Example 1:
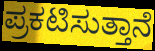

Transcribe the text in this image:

ಪ್ರಕಟಿಸುತ್ತಾನೆ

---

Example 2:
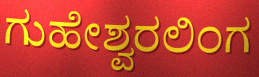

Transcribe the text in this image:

ಗುಹೇಶ್ವರಲಿಂಗ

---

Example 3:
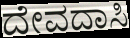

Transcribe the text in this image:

ದೇವದಾಸಿ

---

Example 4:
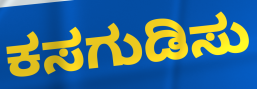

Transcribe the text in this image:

ಕಸಗುಡಿಸು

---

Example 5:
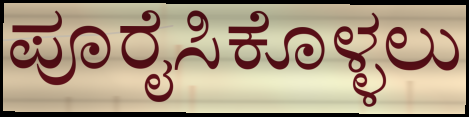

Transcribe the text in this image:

ಪೂರೈಸಿಕೊಳ್ಳಲು